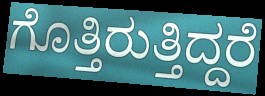
ಗೊತ್ತಿರುತ್ತಿದ್ದರೆ